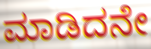
ಮಾಡಿದನೇ